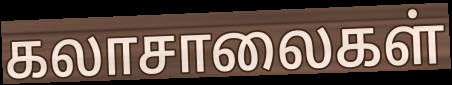
கலாசாலைகள்